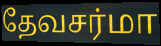
தேவசர்மா